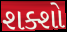
શક્શો